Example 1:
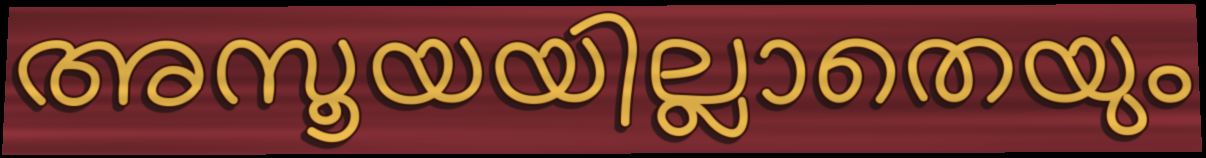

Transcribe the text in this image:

അസൂയയില്ലാതെയും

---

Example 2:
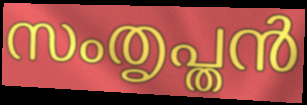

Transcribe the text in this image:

സംതൃപ്തൻ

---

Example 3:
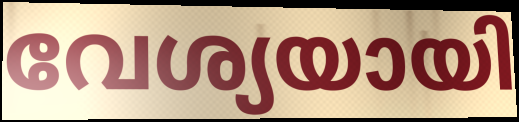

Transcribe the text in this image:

വേശ്യയായി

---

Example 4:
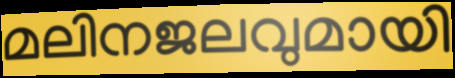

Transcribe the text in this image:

മലിനജലവുമായി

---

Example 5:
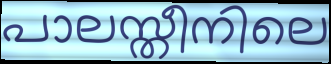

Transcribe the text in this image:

പാലസ്തീനിലെ